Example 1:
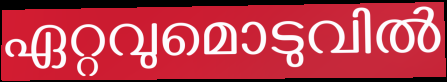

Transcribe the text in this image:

ഏറ്റവുമൊടുവിൽ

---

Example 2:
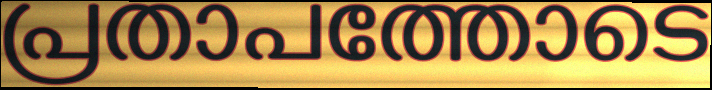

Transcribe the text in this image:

പ്രതാപത്തോടെ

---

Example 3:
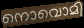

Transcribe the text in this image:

നൊവൊമി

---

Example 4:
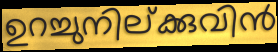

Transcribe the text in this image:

ഉറച്ചുനില്ക്കുവിൻ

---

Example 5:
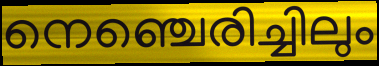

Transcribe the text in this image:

നെഞ്ചെരിച്ചിലും